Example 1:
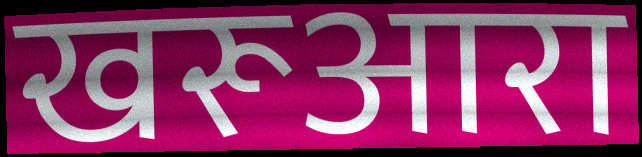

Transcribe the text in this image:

खरूआरा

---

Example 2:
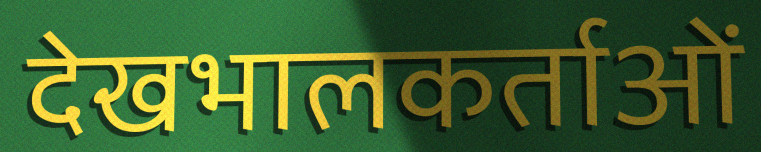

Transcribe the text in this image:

देखभालकर्ताओं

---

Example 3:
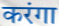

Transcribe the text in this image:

करंगा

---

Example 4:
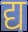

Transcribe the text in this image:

द्य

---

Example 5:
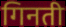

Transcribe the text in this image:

गिनती